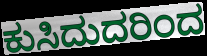
ಕುಸಿದುದರಿಂದ